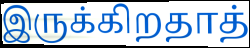
இருக்கிறதாத்